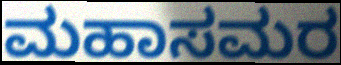
ಮಹಾಸಮರ